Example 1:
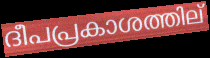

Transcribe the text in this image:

ദീപപ്രകാശത്തില്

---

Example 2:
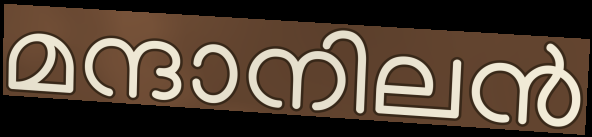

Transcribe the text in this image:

മന്ദാനിലൻ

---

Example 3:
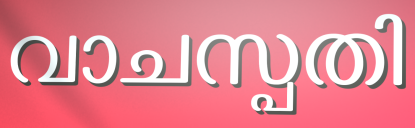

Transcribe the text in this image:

വാചസ്പതി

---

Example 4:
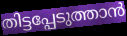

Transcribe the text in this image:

തിട്ടപ്പേടുത്താൻ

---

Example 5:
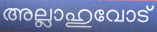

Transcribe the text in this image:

അല്ലാഹുവോട്